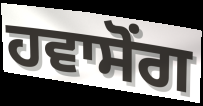
ਹਵਾਸੋਂਗ